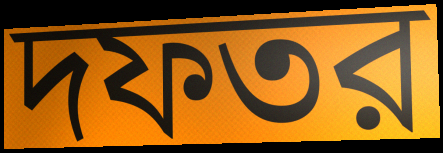
দফতর